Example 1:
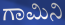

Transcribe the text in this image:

ಗಾಮಿನಿ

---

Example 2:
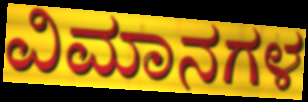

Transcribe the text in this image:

ವಿಮಾನಗಳ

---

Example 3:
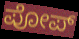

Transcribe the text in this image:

ಪೋಪ್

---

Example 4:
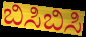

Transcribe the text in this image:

ಬಿಸಿಬಿಸಿ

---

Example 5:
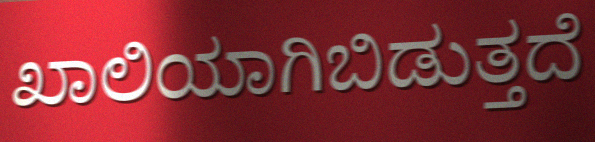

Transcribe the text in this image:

ಖಾಲಿಯಾಗಿಬಿಡುತ್ತದೆ